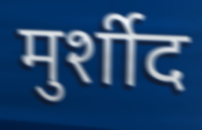
मुर्शीद